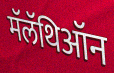
मॅलॅथिऑन